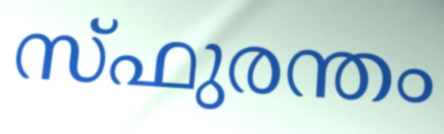
സ്ഫുരന്തം